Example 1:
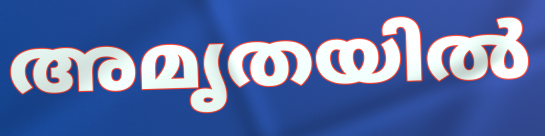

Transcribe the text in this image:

അമൃതയിൽ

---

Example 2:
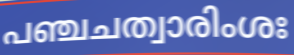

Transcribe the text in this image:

പഞ്ചചത്വാരിംശഃ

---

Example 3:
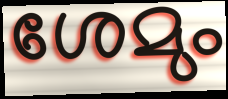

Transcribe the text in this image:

ശേമും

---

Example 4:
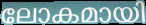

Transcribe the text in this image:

ലോകമായി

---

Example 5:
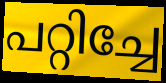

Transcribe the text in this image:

പറ്റിച്ചേ